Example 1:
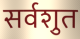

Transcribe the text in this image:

सर्वश्रुत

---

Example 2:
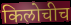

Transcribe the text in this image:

किलोचीच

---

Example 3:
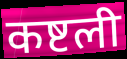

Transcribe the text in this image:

कष्टली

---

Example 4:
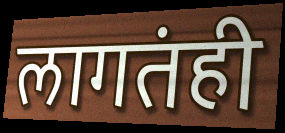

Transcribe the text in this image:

लागतंही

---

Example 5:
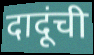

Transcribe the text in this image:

दादूंची